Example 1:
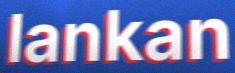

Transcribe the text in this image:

lankan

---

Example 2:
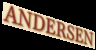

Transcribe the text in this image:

ANDERSEN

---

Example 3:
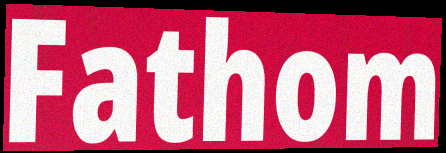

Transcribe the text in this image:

Fathom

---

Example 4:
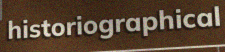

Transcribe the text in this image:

historiographical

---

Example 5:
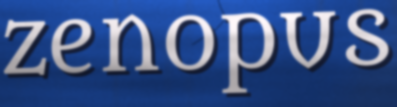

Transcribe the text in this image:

zenopus